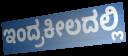
ಇಂದ್ರಕೀಲದಲ್ಲಿ